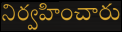
నిర్వహించారు